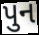
પુન